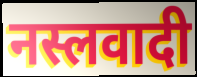
नस्लवादी